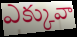
ఎక్కువా